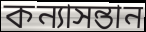
কন্যাসন্তান